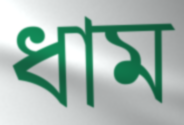
ধাম